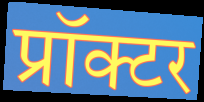
प्रॉक्टर